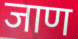
जाण